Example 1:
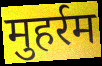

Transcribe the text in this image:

मुहर्रम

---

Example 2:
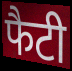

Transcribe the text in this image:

फैटी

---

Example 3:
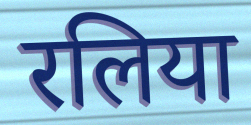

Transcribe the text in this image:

रलिया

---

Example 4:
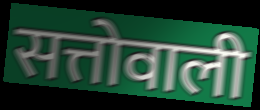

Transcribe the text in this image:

सत्तोवाली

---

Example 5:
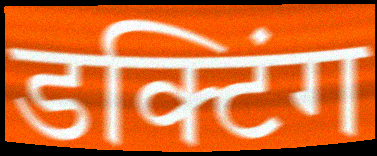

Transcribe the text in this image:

डक्टिंग